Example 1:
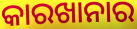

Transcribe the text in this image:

କାରଖାନାର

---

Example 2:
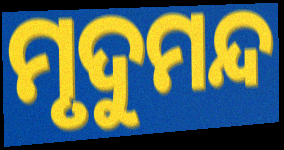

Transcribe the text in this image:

ମୃଦୁମନ୍ଦ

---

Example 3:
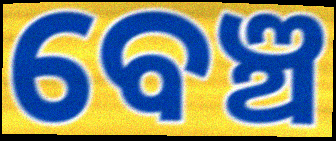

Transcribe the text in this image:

ବେଞ୍ଚ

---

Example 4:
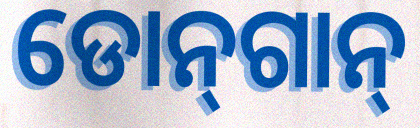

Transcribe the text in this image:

ଡୋନ୍‌ଗାନ୍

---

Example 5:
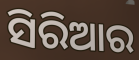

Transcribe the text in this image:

ସିରିଆର